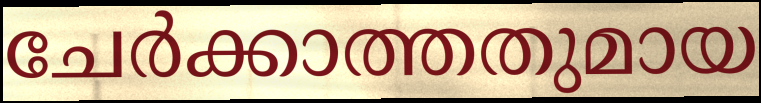
ചേർക്കാത്തതുമായ